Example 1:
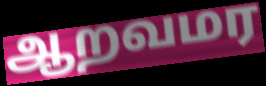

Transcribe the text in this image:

ஆறவமர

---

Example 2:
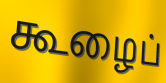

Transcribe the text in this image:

கூழைப்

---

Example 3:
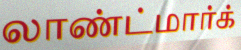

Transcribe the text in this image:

லாண்ட்மார்க்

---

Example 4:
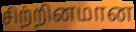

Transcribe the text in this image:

சிற்றினமான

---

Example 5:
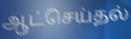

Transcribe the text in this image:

ஆட்செய்தல்